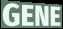
GENE